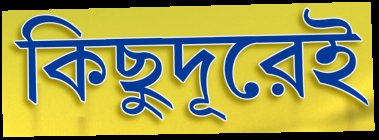
কিছুদূরেই